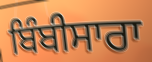
ਬਿੰਬੀਸਾਰਾ